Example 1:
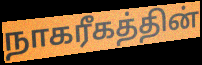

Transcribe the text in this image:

நாகரீகத்தின்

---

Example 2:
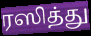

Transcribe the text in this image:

ரஸித்து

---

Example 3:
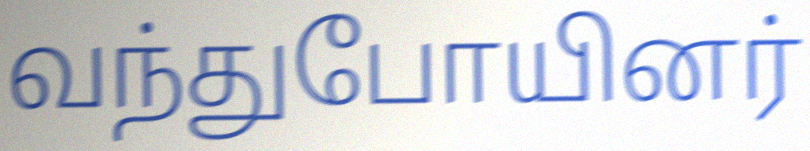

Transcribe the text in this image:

வந்துபோயினர்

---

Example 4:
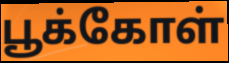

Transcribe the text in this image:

பூக்கோள்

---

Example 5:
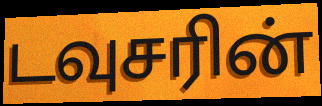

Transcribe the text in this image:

டவுசரின்